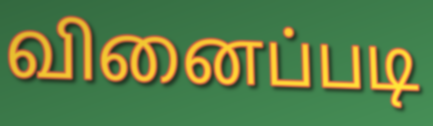
வினைப்படி